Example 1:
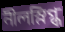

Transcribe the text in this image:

নীলস্নিগ্ধ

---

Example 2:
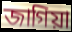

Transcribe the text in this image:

জাগিয়া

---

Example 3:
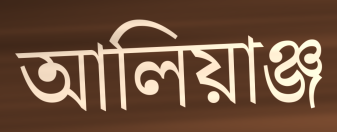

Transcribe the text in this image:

আলিয়াঞ্জ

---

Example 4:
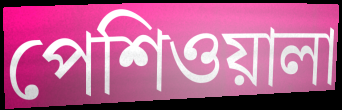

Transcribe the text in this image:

পেশিওয়ালা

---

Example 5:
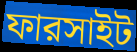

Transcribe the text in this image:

ফারসাইট